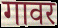
गावर